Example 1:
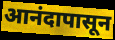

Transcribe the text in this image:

आनंदापासून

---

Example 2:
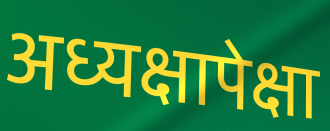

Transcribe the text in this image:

अध्यक्षापेक्षा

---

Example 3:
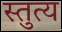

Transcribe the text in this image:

स्तुत्य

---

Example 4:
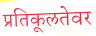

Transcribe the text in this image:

प्रतिकूलतेवर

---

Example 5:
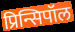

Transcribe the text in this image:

प्रिन्सिपॉल